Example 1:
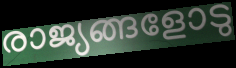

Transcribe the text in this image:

രാജ്യങ്ങളോടു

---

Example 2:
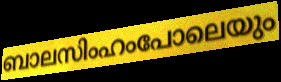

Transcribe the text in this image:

ബാലസിംഹംപോലെയും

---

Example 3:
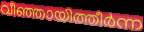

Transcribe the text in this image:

വീഞ്ഞായിത്തീർന്ന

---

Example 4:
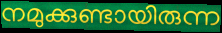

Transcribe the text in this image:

നമുക്കുണ്ടായിരുന്ന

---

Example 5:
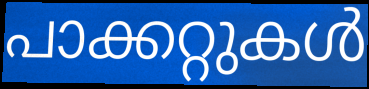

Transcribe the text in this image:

പാക്കറ്റുകൾ